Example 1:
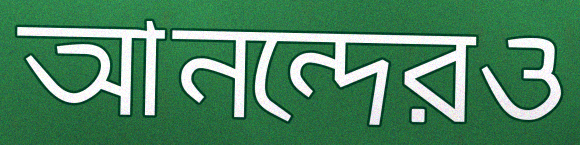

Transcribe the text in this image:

আনন্দেরও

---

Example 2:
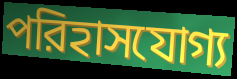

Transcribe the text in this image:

পরিহাসযোগ্য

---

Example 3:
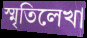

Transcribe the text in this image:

স্মৃতিলেখা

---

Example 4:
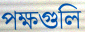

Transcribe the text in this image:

পক্ষগুলি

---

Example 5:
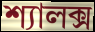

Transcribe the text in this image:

শ্যালক্স